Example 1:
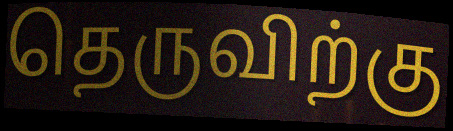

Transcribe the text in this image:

தெருவிற்கு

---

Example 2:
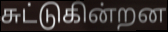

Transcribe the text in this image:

சுட்டுகின்றன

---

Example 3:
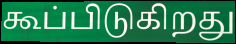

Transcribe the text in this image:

கூப்பிடுகிறது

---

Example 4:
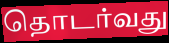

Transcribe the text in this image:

தொடர்வது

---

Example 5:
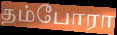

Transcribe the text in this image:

தம்போரா